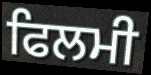
ਫਿਲਮੀ